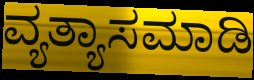
ವ್ಯತ್ಯಾಸಮಾಡಿ